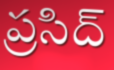
ప్రసిద్